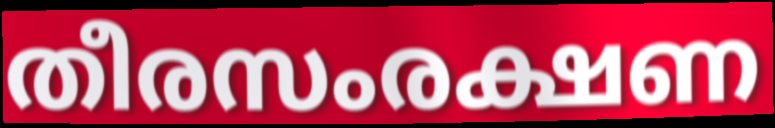
തീരസംരക്ഷണ